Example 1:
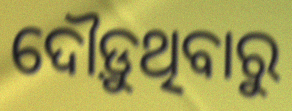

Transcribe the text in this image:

ଦୌଡ଼ୁଥିବାରୁ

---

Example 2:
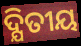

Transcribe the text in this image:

ଦ୍ଯିତୀୟ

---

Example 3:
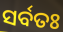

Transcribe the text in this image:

ସର୍ବତଃ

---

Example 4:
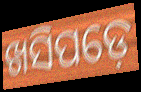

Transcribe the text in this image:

ଖସିପଡ଼େ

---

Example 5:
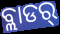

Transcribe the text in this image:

ବ୍ଲାଡର୍